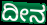
ದೀನ